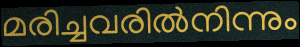
മരിച്ചവരിൽനിന്നും